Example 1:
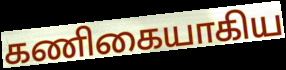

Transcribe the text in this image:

கணிகையாகிய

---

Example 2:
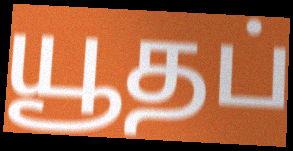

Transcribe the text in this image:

யூதப்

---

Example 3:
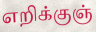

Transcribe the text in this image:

எறிக்குஞ்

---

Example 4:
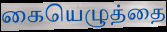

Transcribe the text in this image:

கையெழுத்தை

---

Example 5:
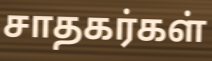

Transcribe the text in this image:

சாதகர்கள்